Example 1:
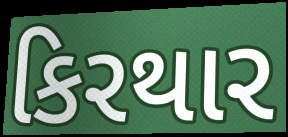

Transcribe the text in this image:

કિરથાર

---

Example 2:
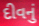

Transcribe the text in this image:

દીવનું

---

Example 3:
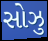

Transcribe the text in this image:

સોઝુ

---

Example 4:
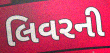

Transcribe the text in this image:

લિવરની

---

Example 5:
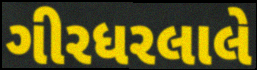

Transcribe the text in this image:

ગીરધરલાલે